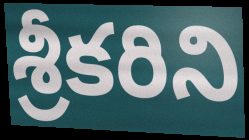
శ్రీకరిని